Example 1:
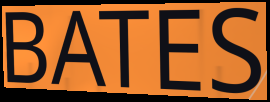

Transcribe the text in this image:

BATES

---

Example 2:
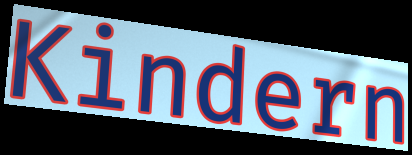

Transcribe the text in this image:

Kindern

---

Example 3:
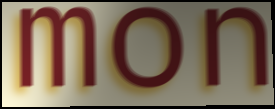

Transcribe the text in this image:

mon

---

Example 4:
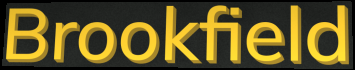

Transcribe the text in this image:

Brookfield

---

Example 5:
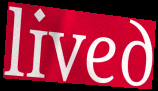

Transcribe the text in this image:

lived